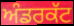
ਅੰਡਰਕੱਟ